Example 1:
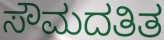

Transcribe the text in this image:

ಸೌಮದತಿತ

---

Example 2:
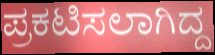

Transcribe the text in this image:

ಪ್ರಕಟಿಸಲಾಗಿದ್ದ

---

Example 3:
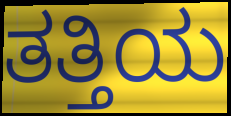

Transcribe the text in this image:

ತತ್ತಿಯ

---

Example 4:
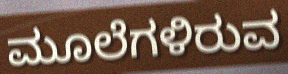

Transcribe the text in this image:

ಮೂಲೆಗಳಿರುವ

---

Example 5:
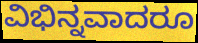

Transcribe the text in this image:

ವಿಭಿನ್ನವಾದರೂ